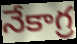
నేకాగ్ర